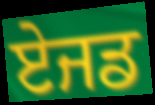
ਏਜਡ